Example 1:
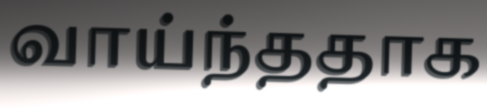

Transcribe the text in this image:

வாய்ந்ததாக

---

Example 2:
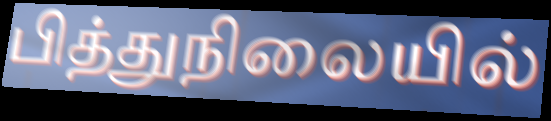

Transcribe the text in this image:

பித்துநிலையில்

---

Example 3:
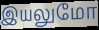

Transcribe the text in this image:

இயலுமோ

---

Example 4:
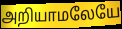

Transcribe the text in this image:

அறியாமலேயே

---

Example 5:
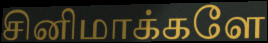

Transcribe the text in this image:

சினிமாக்களே